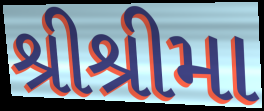
શ્રીશ્રીમા